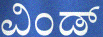
ವಿಂಡ್